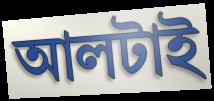
আলটাই